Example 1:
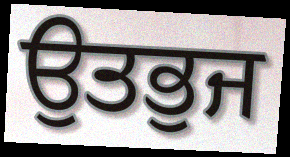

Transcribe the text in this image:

ਉਤਭੁਜ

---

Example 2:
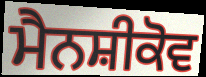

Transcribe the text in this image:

ਮੈਨਸ਼ੀਕੋਵ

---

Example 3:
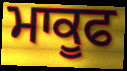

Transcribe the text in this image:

ਮਾਕੂਫ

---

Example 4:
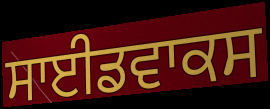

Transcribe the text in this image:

ਸਾਈਡਵਾਕਸ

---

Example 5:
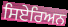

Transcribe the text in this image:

ਸਿਏਰਿਅਨ